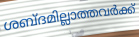
ശബ്ദമില്ലാത്തവർക്ക്